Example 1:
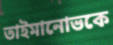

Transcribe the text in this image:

তাইমানোভকে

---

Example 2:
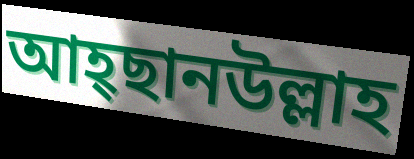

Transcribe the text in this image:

আহ্ছানউল্লাহ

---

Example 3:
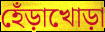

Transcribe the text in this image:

হেঁড়াখোড়া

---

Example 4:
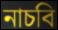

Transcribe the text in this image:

নাচবি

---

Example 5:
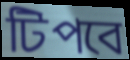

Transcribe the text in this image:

টিপবে